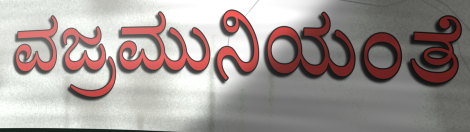
ವಜ್ರಮುನಿಯಂತೆ